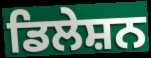
ਡਿਲੇਸ਼ਨ